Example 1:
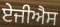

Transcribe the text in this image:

ਏਜੀਐਸ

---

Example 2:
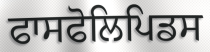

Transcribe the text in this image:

ਫਾਸਫੋਲਿਪਿਡਸ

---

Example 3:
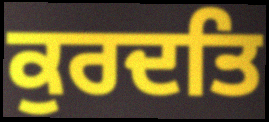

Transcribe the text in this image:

ਕੁਰਦਤਿ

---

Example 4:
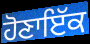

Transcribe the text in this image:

ਹੋਣਾਇੱਕ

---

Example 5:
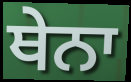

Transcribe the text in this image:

ਥੇਨਾ